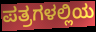
ಪತ್ರಗಳಲ್ಲಿಯ